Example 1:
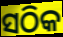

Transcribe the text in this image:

ସଠିକ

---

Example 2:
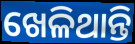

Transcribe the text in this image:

ଖେଳିଥାନ୍ତି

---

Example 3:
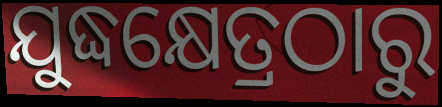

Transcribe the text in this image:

ଯୁଦ୍ଧକ୍ଷେତ୍ରଠାରୁ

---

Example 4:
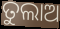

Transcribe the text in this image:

ତୁଲାଅ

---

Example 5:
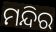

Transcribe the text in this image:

ମନ୍ଦିର